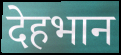
देहभान